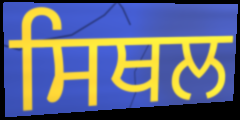
ਸਿਥਲ